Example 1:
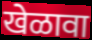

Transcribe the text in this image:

खेळावा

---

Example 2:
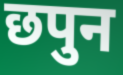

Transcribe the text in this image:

छपुन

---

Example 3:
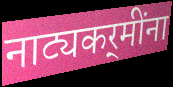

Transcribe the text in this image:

नाट्यकर्मींना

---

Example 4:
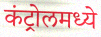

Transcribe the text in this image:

कंट्रोलमध्ये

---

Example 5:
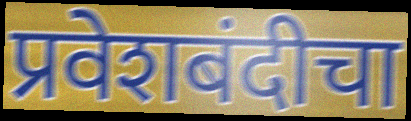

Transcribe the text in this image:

प्रवेशबंदीचा